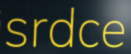
srdce